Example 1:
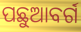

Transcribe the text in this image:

ପଛୁଆବର୍ଗ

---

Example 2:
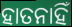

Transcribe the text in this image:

ହାତନାହିଁ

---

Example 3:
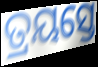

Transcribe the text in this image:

ତ୍ରୟସ୍ତେ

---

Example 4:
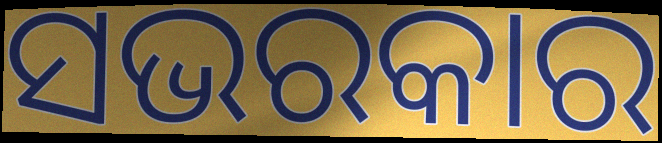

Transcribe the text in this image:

ସଭରକାର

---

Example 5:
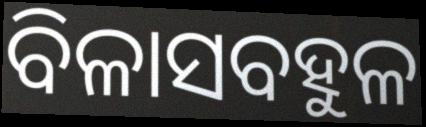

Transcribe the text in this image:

ବିଳାସବହୁଳ